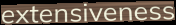
extensiveness